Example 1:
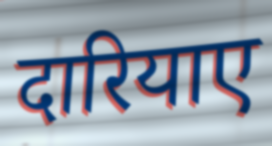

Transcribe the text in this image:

दारियाए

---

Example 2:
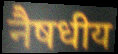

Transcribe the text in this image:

नैषधीय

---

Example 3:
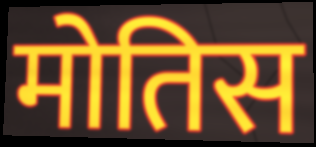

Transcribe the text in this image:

मोतिस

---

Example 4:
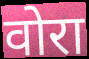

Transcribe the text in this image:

वोरा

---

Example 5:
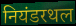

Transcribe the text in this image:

नियंडरथल